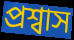
প্রশ্বাস